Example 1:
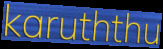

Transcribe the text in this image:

karuththu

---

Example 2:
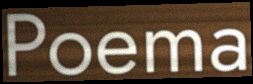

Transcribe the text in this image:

Poema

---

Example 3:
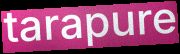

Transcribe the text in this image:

tarapure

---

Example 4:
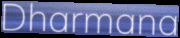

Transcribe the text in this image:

Dharmana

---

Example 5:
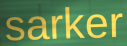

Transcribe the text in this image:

sarker